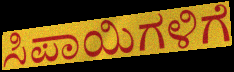
ಸಿಪಾಯಿಗಳಿಗೆ